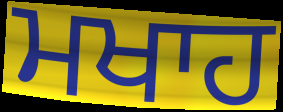
ਮਖਾਹ